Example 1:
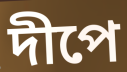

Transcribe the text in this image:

দীপে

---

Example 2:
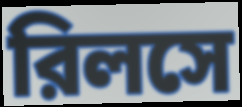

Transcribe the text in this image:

রিলসে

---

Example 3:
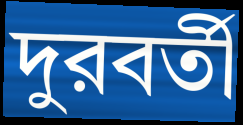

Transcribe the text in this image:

দুরবর্তী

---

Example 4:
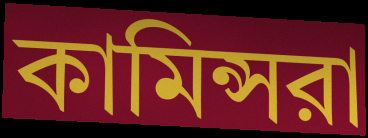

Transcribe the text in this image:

কামিন্সরা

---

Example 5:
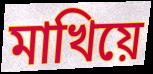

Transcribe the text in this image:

মাখিয়ে